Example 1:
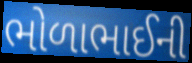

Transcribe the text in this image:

ભોળાભાઈની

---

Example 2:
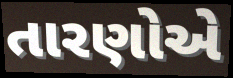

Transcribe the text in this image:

તારણોએ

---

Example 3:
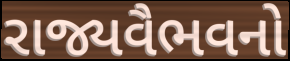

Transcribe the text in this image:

રાજ્યવૈભવનો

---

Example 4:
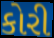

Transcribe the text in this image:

કોરી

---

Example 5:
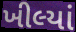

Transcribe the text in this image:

ખીલ્યાં